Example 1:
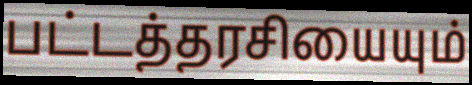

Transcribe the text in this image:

பட்டத்தரசியையும்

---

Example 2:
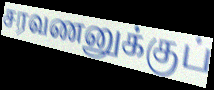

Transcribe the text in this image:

சரவணனுக்குப்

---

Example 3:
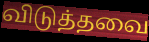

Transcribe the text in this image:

விடுத்தவை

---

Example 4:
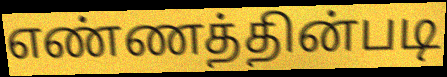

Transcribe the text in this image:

எண்ணத்தின்படி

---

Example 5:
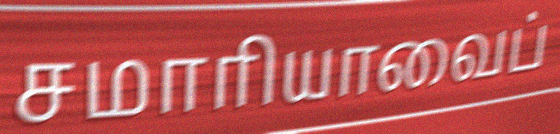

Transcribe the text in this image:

சமாரியாவைப்